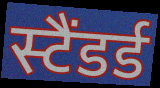
स्टैंडर्ड